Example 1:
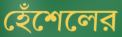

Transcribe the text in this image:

হেঁশেলের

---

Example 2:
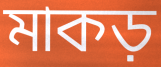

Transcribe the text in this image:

মাকড়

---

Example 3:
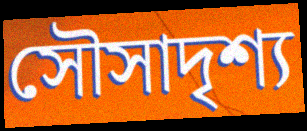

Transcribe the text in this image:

সৌসাদৃশ্য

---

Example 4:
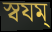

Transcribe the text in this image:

স্বযম্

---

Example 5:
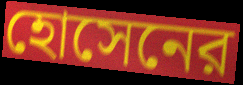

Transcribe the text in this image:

হোসেনের